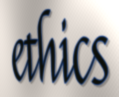
ethics